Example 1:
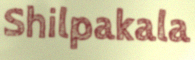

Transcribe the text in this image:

Shilpakala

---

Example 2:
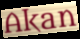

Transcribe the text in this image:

Akan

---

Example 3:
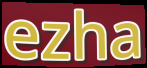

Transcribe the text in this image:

ezha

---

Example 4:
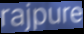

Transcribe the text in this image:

rajpure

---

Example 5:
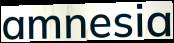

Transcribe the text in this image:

amnesia